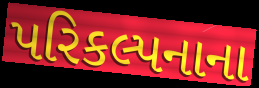
પરિકલ્પનાના